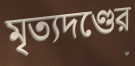
মৃত্যদণ্ডের